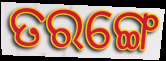
ତରଙ୍ଗେ